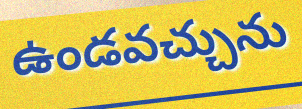
ఉండవచ్చును